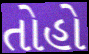
તોહો